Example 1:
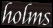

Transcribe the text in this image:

holms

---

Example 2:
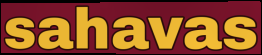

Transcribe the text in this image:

sahavas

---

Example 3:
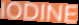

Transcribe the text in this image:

IODINE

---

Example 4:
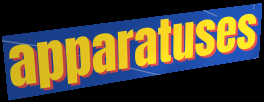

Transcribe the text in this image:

apparatuses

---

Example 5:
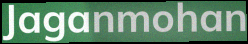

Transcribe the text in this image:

Jaganmohan